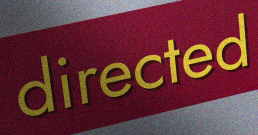
directed